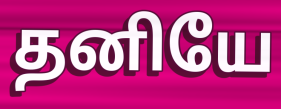
தனியே